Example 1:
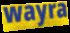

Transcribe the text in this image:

wayra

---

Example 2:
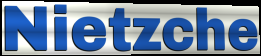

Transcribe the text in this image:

Nietzche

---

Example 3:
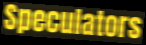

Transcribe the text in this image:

Speculators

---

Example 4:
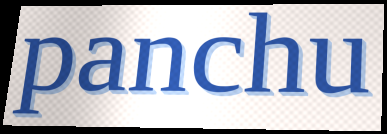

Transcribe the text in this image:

panchu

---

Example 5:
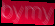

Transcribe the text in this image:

bymy